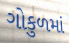
ગોકુળમાં